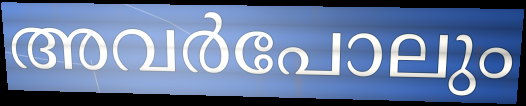
അവർപോലും